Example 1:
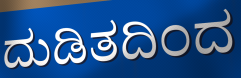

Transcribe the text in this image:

ದುಡಿತದಿಂದ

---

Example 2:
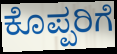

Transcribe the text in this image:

ಕೊಪ್ಪರಿಗೆ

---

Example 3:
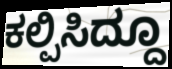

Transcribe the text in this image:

ಕಲ್ಪಿಸಿದ್ದೂ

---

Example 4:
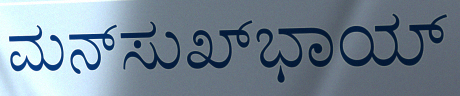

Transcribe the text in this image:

ಮನ್‌ಸುಖ್‌ಭಾಯ್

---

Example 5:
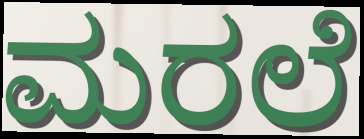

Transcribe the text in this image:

ಮರಲೆ